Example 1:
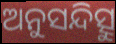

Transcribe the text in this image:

ଅନୁସନ୍ଦିତ୍ସୁ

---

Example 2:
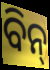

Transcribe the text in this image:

ବିନ୍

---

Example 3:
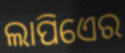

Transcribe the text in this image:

ଲାପିଏେର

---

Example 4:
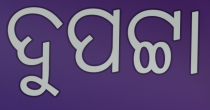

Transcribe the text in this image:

ଦୁପଟ୍ଟା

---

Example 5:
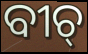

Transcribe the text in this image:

ବୀଚ୍